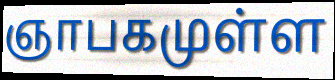
ஞாபகமுள்ள